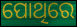
ପୋଥିରେ